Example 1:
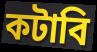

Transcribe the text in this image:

কটাবি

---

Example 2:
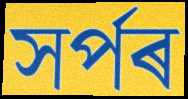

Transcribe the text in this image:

সৰ্পৰ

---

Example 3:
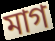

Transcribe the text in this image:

মাগ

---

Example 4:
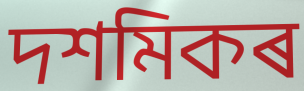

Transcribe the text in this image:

দশমিকৰ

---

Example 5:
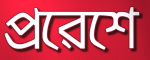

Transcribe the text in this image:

প্ৰৱেশে